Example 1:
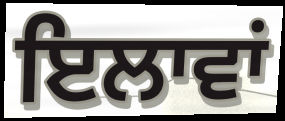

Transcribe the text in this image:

ਇਲਾਵਾਂ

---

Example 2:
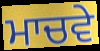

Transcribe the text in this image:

ਮਾਚਵੇ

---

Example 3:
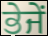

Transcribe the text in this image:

ਭੇਜੇਂ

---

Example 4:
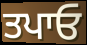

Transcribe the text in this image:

ਤਪਾਓ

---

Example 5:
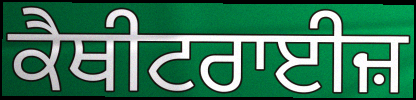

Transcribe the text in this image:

ਕੈਥੀਟਰਾਈਜ਼